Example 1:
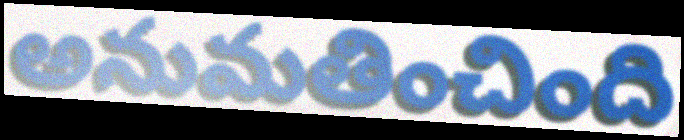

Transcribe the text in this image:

అనుమతించింది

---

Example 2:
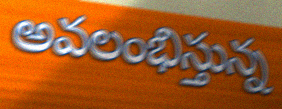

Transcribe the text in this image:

అవలంభిస్తున్న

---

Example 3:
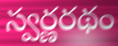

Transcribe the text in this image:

స్వర్ణరథం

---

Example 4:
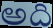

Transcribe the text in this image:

అది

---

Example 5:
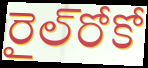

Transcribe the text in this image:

రైల్‌రోకో